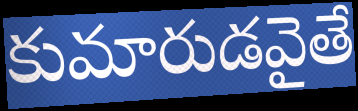
కుమారుడవైతే